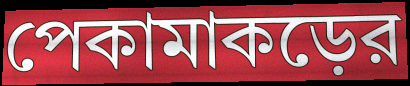
পেকামাকড়ের